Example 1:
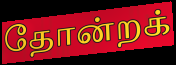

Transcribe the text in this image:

தோன்றக்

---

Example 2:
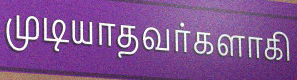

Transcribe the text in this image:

முடியாதவர்களாகி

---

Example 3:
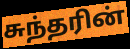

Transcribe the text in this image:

சுந்தரின்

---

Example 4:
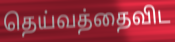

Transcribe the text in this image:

தெய்வத்தைவிட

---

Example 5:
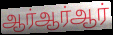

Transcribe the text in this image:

ஆர்ஆர்ஆர்